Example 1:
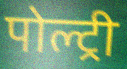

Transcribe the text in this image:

पोल्ट्री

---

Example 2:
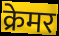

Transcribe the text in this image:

क्रेमर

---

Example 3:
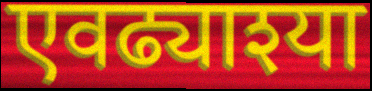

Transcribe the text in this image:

एवढ्याश्या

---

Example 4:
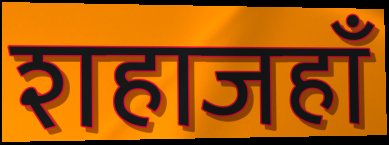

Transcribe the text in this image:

शहाजहाँ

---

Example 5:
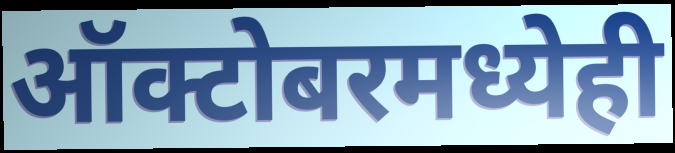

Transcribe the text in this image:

ऑक्टोबरमध्येही